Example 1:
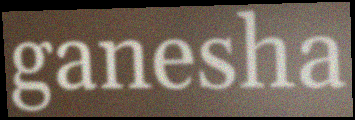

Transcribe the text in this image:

ganesha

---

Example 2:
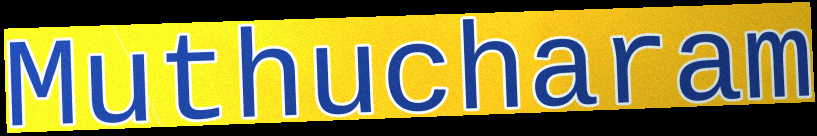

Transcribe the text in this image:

Muthucharam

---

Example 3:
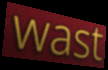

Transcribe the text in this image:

wast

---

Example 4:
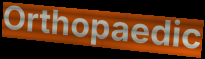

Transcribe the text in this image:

Orthopaedic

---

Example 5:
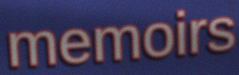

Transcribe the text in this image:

memoirs